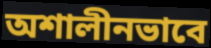
অশালীনভাবে